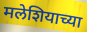
मलेशियाच्या